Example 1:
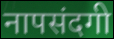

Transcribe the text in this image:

नापसंदगी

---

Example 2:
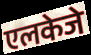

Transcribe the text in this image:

एलकेजे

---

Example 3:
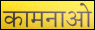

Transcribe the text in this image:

कामनाओ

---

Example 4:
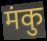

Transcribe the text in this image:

मंकु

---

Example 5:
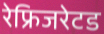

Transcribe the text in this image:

रेफ्रिजरेटड